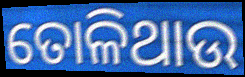
ତୋଳିଥାଉ